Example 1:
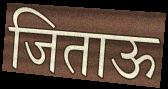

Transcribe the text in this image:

जिताऊ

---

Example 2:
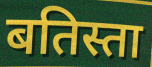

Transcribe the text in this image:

बतिस्ता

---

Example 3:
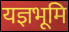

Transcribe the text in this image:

यज्ञभूमि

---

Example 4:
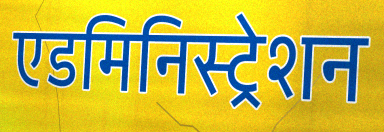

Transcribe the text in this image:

एडमिनिस्ट्रेशन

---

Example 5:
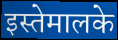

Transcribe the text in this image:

इस्तेमालके